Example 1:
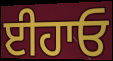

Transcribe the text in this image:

ਈਹਾਓ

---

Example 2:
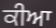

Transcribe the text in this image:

ਕੀਆ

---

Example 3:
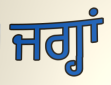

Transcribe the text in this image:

ਜਗ੍ਹਾਂ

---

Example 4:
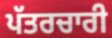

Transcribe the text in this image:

ਪੱਤਰਚਾਰੀ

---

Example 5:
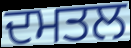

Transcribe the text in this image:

ਦਮਤਲ